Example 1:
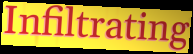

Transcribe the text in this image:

Infiltrating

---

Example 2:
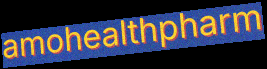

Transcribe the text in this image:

amohealthpharm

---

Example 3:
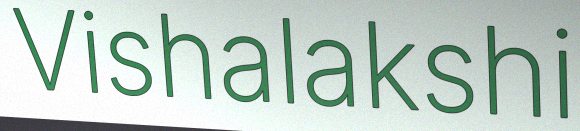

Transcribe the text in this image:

Vishalakshi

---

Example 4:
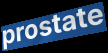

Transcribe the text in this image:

prostate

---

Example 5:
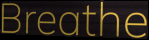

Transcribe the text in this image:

Breathe